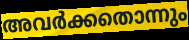
അവർക്കതൊന്നും